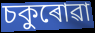
চকুৰোৱা